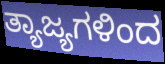
ತ್ಯಾಜ್ಯಗಳಿಂದ